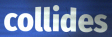
collides